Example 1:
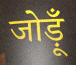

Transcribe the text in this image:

जोड़ूँ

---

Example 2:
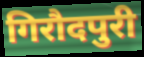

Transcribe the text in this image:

गिरौदपुरी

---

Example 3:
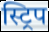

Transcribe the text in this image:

स्ट्रिप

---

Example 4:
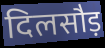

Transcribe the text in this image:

दिलसौड़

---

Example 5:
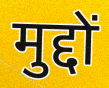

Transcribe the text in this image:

मुद्दों